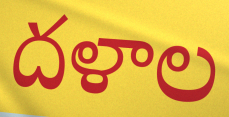
దళాల